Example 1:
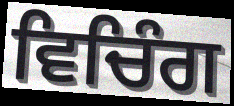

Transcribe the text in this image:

ਵਿਚਿੰਗ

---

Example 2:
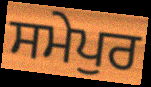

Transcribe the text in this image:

ਸਮੇਪੁਰ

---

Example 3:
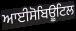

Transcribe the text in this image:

ਆਈਸੋਬਿਊਟਿਲ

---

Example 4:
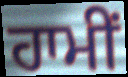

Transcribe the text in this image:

ਹਾਮੀਂ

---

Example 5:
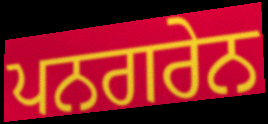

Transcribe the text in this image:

ਪਨਗਰੇਨ